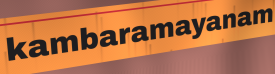
kambaramayanam